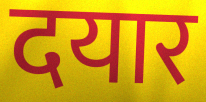
दयार